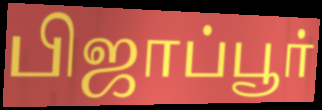
பிஜாப்பூர்